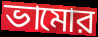
ভামোর